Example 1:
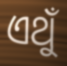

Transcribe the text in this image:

ଏଥୁଁ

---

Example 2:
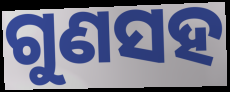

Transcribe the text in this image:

ଗୁଣସହ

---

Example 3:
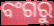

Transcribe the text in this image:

ବଂଗରୁ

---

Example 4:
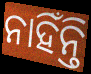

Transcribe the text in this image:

ନାହିଁନ୍ତି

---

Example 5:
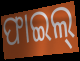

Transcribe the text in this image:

ଫାଇଲ୍